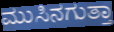
ಮುಸಿನಗುತ್ತಾ